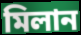
মিলান